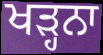
ਖੜ੍ਹਨਾ